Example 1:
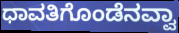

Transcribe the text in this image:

ಧಾವತಿಗೊಂಡೆನವ್ವಾ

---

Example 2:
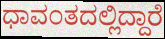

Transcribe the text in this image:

ಧಾವಂತದಲ್ಲಿದ್ದಾರೆ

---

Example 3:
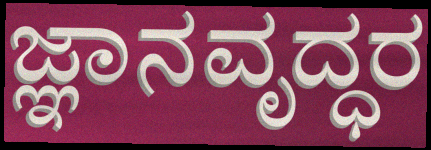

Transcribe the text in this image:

ಜ್ಞಾನವೃದ್ಧರ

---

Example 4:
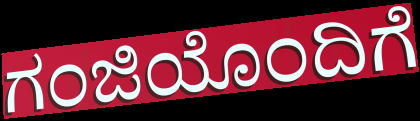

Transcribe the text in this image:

ಗಂಜಿಯೊಂದಿಗೆ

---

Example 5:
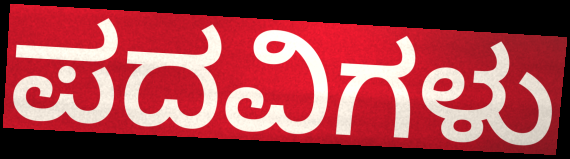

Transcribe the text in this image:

ಪದವಿಗಳು